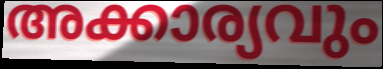
അക്കാര്യവും